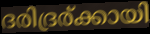
ദരിദ്രര്ക്കായി